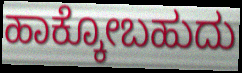
ಹಾಕ್ಕೋಬಹುದು